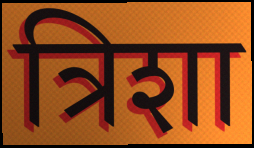
त्रिशा